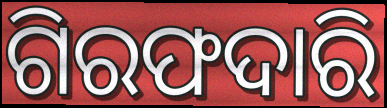
ଗିରଫଦାରି